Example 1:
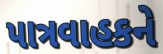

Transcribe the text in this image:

પાત્રવાહકને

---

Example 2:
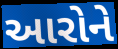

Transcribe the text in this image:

આરોને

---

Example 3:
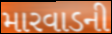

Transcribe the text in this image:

મારવાડની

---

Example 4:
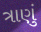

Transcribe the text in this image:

ત્રાણું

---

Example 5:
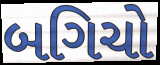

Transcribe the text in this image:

બગિચો